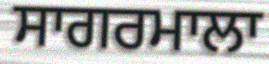
ਸਾਗਰਮਾਲਾ